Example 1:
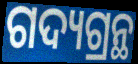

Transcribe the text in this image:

ଗଦ୍ୟଗ୍ରନ୍ଥ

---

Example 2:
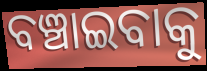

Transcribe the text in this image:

ବଞ୍ଚାଇବାକୁ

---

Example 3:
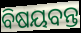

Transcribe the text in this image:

ବିଷୟବନ୍ତ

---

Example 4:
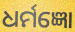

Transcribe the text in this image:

ଧର୍ମଜ୍ଞୋ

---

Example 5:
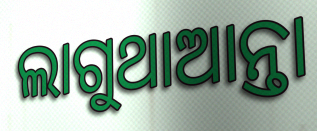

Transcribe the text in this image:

ଲାଗୁଥାଆନ୍ତା